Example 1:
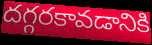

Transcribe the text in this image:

దగ్గరకావడానికి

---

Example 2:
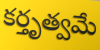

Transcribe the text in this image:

కర్తృత్వమే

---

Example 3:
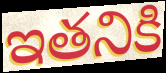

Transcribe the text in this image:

ఇతనికి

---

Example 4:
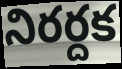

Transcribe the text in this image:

నిరర్దక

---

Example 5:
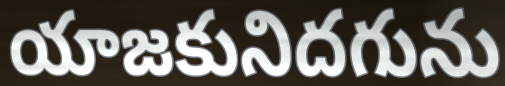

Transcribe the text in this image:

యాజకునిదగును